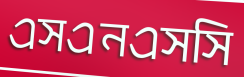
এসএনএসসি